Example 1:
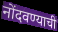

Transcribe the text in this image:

नोंदवण्याची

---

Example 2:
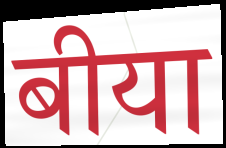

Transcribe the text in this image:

बीया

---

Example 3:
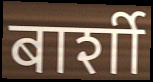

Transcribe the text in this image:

बार्शी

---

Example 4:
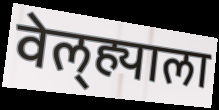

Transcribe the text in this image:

वेल्ह्याला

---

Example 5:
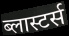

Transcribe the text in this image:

ब्लास्टर्स